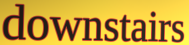
downstairs